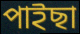
পাইছা